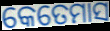
କେତେମାସ